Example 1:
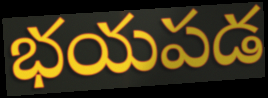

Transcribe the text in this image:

భయపడ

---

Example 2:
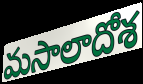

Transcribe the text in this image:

మసాలాదోశ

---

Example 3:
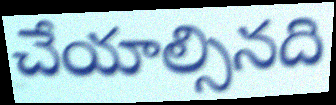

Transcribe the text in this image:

చేయాల్సినది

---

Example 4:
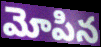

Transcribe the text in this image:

మోపిన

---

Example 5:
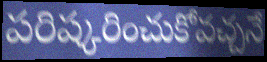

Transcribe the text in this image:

పరిష్కరించుకోవచ్చనే